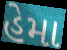
હેમા